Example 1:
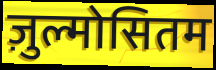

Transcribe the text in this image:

ज़ुल्मोसितम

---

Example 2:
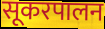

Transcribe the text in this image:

सूकरपालन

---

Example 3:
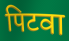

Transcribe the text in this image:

पिटवा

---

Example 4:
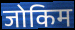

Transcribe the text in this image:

जोकिम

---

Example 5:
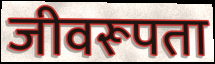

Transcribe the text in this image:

जीवरूपता